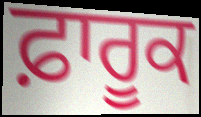
ਫ਼ਾਰੂਕ